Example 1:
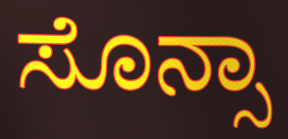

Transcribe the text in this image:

ಸೊನ್ಸಾ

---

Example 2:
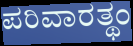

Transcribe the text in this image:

ಪರಿವಾರತ್ಥಂ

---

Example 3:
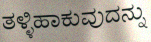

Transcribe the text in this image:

ತಳ್ಳಿಹಾಕುವುದನ್ನು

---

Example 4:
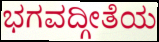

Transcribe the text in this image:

ಭಗವದ್ಗೀತೆಯ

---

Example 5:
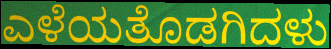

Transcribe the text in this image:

ಎಳೆಯತೊಡಗಿದಳು